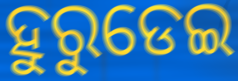
ହୁରୁଡେଇ